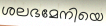
ശലഭമേനിയെ